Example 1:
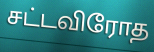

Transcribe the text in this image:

சட்டவிரோத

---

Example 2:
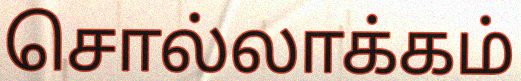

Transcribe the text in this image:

சொல்லாக்கம்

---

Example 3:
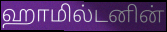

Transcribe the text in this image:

ஹாமில்டனின்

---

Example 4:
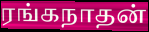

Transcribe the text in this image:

ரங்கநாதன்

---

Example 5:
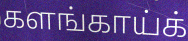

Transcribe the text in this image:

களங்காய்க்